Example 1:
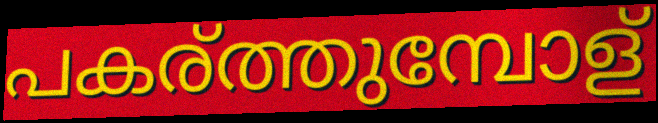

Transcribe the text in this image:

പകര്ത്തുമ്പോള്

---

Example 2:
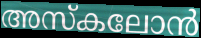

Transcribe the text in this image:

അസ്കലോൻ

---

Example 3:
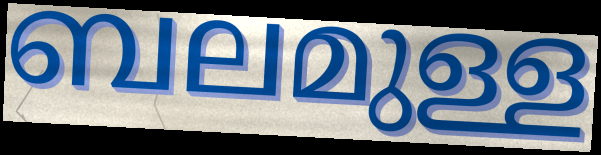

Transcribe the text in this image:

ബലമുള്ള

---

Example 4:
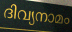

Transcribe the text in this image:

ദിവ്യനാമം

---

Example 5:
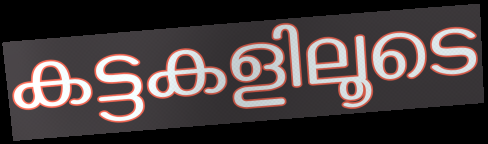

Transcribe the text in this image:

കട്ടകളിലൂടെ